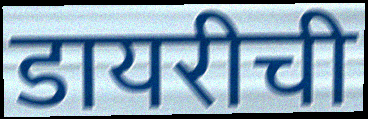
डायरीची